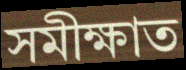
সমীক্ষাত